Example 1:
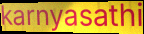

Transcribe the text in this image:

karnyasathi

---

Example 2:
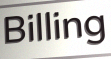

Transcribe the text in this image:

Billing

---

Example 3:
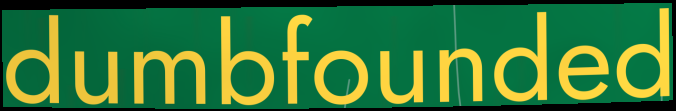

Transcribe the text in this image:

dumbfounded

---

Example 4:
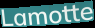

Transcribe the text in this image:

Lamotte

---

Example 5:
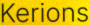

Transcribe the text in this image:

Kerions